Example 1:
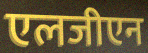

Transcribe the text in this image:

एलजीएन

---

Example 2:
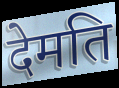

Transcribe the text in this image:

देमति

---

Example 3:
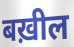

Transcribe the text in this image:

बख़ील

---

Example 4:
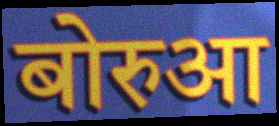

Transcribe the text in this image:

बोरुआ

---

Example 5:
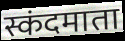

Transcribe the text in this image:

स्‍कंदमाता